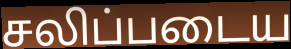
சலிப்படைய